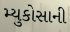
મ્યુકોસાની